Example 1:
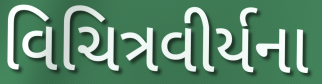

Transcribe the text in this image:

વિચિત્રવીર્યના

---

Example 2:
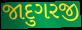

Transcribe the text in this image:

જાદુગરજી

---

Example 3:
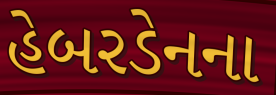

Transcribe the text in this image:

હેબરડેનના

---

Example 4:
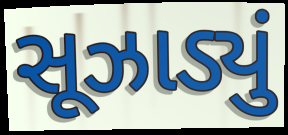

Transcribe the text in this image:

સૂઝાડ્યું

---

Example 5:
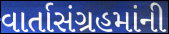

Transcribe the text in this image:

વાર્તાસંગ્રહમાંની